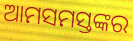
ଆମସମସ୍ତଙ୍କର